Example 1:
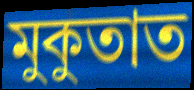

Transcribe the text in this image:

মুকুতাত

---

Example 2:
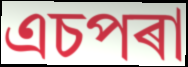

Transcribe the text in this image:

এচপৰা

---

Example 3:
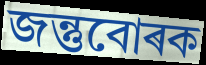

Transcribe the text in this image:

জন্তুবোৰক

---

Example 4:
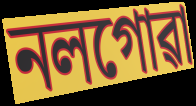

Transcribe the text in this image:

নলগোৱা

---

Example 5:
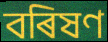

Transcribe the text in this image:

বৰিষণ